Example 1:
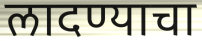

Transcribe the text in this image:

लादण्याचा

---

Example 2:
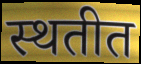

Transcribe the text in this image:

स्थतीत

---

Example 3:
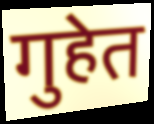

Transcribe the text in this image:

गुहेत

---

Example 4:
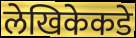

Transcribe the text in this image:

लेखिकेकडे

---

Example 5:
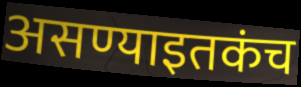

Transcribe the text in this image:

असण्याइतकंच